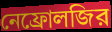
নেফ্রোলজির